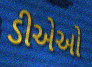
ડીએઓ